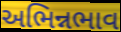
અભિન્નભાવ